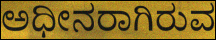
ಅಧೀನರಾಗಿರುವ